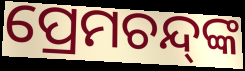
ପ୍ରେମଚନ୍ଦ୍‌ଙ୍କ